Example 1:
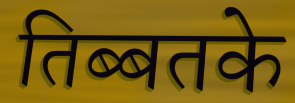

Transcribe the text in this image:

तिब्बतके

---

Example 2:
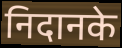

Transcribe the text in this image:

निदानके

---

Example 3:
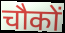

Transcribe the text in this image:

चौकों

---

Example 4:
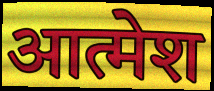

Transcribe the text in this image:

आत्मेश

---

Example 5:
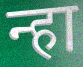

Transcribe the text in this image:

न्हा